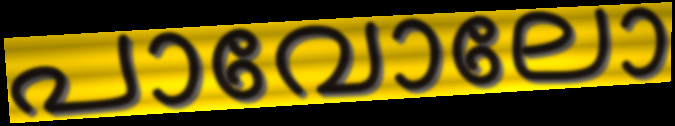
പാവോലോ